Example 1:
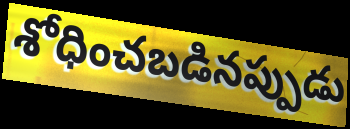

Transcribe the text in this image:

శోధించబడినప్పుడు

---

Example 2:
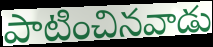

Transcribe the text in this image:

పాటించినవాడు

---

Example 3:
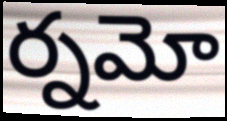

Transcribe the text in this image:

ర్నమో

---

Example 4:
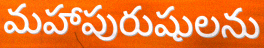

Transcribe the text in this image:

మహాపురుషులను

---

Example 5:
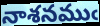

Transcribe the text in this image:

నాశనముఁ